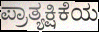
ಪ್ರಾತ್ಯಕ್ಷಿಕೆಯ